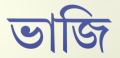
ভাজি